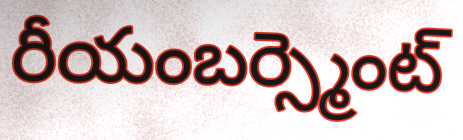
రీయంబర్స్మెంట్